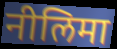
नीलिमा